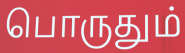
பொருதும்